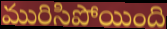
మురిసిపోయింది